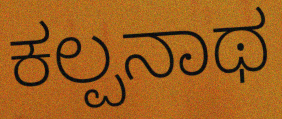
ಕಲ್ಪನಾಥ